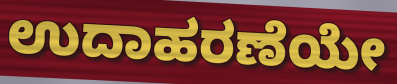
ಉದಾಹರಣೆಯೇ